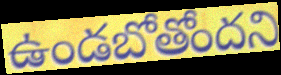
ఉండబోతోందని